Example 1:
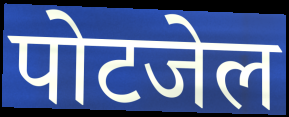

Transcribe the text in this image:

पोटजेल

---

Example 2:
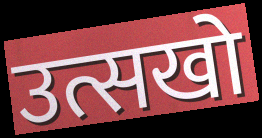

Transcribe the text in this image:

उत्सखो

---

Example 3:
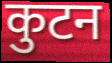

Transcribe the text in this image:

कुटन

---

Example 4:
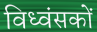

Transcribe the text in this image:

विध्वंसकों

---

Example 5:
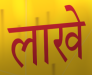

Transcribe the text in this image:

लाखे